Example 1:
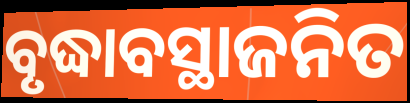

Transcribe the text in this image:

ବୃଦ୍ଧାବସ୍ଥାଜନିତ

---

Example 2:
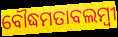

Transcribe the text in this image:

ବୌଦ୍ଧମତାବଲମ୍ବୀ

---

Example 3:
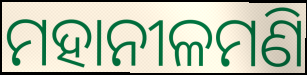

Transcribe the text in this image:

ମହାନୀଳମଣି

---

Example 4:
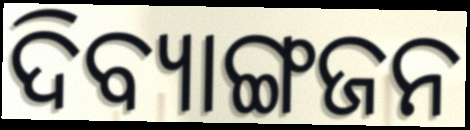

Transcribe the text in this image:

ଦିବ୍ୟାଙ୍ଗଜନ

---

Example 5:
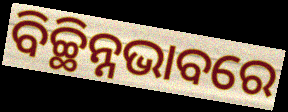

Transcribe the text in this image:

ବିଚ୍ଛିନ୍ନଭାବରେ